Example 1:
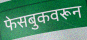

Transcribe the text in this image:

फेसबुकवरून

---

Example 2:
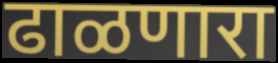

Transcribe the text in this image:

ढाळणारा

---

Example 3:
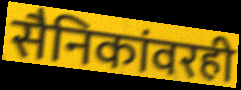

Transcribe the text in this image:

सैनिकांवरही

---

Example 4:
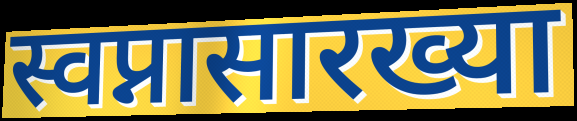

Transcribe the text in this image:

स्वप्नासारख्या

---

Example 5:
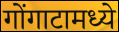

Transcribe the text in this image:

गोंगाटामध्ये